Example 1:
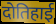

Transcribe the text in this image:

दोतिहाई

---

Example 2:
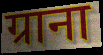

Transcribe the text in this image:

ग्राना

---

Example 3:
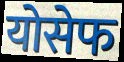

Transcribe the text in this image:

योसेफ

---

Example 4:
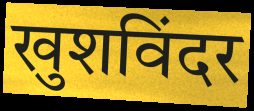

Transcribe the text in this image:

खुशविंदर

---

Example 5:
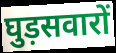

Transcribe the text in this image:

घुड़सवारों